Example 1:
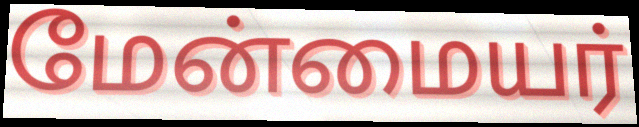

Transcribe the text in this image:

மேன்மையர்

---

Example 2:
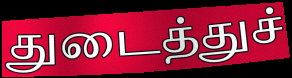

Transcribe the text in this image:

துடைத்துச்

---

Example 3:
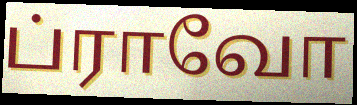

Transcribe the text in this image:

ப்ராவோ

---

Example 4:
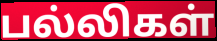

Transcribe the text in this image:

பல்லிகள்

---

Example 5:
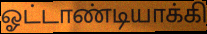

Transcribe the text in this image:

ஓட்டாண்டியாக்கி